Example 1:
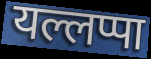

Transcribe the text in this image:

यल्लप्पा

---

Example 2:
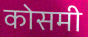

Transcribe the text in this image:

कोसमी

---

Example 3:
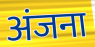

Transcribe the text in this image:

अंजना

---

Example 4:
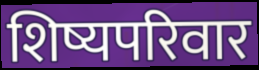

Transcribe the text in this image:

शिष्यपरिवार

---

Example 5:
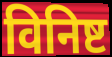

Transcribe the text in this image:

विनिष्ट